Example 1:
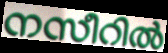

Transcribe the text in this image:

നസീറിൽ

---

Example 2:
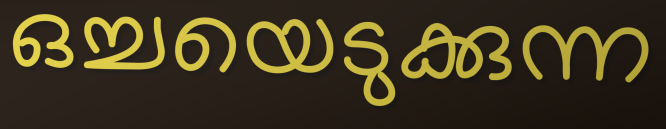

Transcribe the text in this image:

ഒച്ചയെടുക്കുന്ന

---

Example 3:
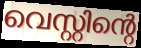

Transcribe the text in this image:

വെസ്റ്റിന്റെ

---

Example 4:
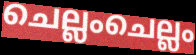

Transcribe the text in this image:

ചെല്ലംചെല്ലം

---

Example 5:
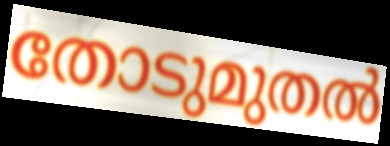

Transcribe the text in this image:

തോടുമുതൽ